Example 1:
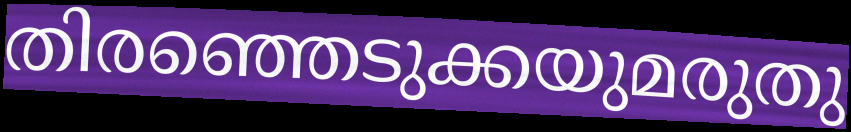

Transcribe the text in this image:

തിരഞ്ഞെടുക്കയുമരുതു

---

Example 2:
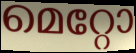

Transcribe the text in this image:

മെറ്റോ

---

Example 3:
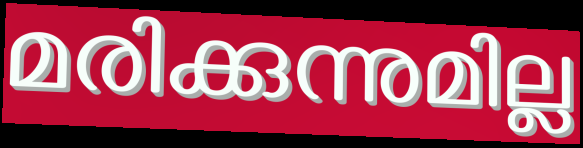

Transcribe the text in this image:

മരിക്കുന്നുമില്ല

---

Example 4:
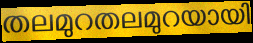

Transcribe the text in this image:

തലമുറതലമുറയായി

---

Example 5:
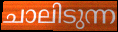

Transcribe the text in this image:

ചാലിടുന്ന